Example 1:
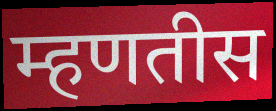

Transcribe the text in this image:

म्हणतीस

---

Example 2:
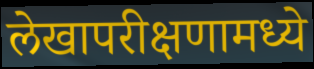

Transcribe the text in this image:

लेखापरीक्षणामध्ये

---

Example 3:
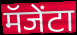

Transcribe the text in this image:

मॅजेंटा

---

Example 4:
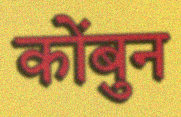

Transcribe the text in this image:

कोंबुन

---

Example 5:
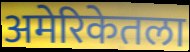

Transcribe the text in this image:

अमेरिकेतला